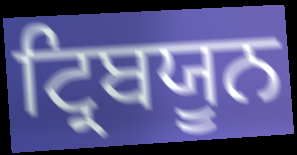
ਟ੍ਰਿਬਯੂਨ